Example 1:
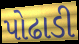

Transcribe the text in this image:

પોઢાડી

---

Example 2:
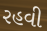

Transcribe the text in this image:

રહવી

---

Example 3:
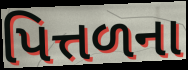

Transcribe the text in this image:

પિત્તળના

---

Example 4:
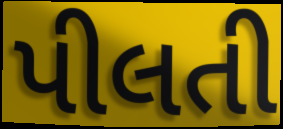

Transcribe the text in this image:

પીલતી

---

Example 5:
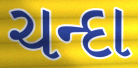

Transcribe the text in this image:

ચન્દા